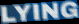
LYING